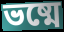
ভষ্মে